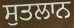
ਸੁਤਲਾਨ